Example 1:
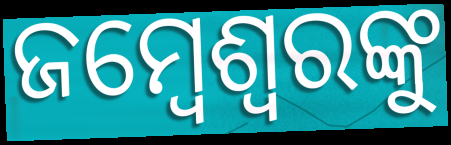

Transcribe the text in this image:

ଜମ୍ବେଶ୍ୱରଙ୍କୁ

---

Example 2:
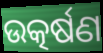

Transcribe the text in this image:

ଉତ୍କର୍ଷଣ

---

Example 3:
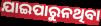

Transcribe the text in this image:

ଯାଇପାରୁନଥିବା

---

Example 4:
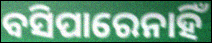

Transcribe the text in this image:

ବସିପାରେନାହିଁ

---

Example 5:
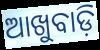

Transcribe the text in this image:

ଆଖୁବାଡ଼ି